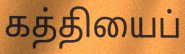
கத்தியைப்